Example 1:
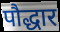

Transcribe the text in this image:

पौद्धार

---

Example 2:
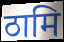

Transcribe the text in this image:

ठामि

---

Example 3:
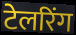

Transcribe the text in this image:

टेलरिंग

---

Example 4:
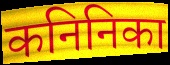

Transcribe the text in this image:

कनिनिका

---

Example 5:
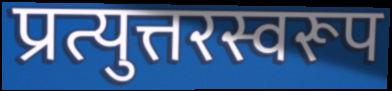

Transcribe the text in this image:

प्रत्युत्तरस्वरूप